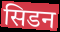
सिडन